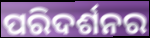
ପରିଦର୍ଶନର